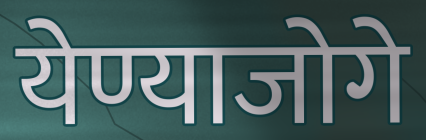
येण्याजोगे